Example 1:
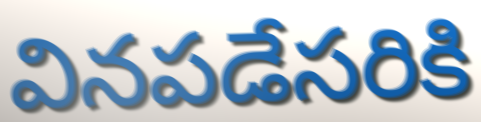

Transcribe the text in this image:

వినపడేసరికి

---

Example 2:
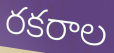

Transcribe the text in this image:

రకరాల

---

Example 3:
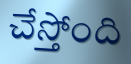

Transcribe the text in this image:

చేస్తోంది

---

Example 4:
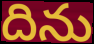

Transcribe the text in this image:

దిను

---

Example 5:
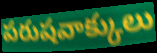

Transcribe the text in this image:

పరుషవాక్కులు